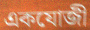
একযোজী